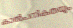
കാൽപനികതയും